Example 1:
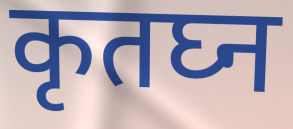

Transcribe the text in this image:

कृतघ्न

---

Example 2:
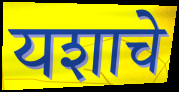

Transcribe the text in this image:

यशाचे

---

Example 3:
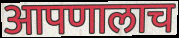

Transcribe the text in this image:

आपणालाच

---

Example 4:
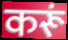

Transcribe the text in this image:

करूं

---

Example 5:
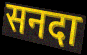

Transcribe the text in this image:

सनदा